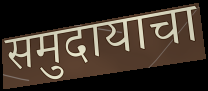
समुदायाचा